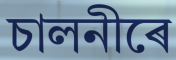
চালনীৰে